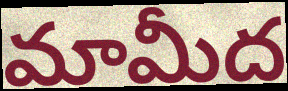
మామీద